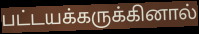
பட்டயக்கருக்கினால்